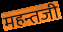
महन्तजी